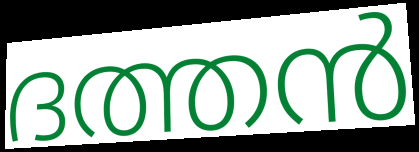
ദത്തൻ